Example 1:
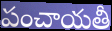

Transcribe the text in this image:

పంచాయతీ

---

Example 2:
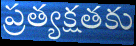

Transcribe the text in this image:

ప్రత్యక్షతకు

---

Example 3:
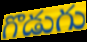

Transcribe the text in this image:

గొడుగు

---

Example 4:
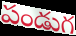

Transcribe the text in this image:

పండుగ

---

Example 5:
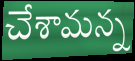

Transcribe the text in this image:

చేశామన్న